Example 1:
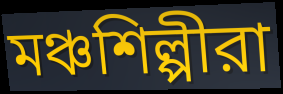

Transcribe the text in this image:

মঞ্চশিল্পীরা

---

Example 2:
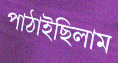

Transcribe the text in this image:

পাঠাইছিলাম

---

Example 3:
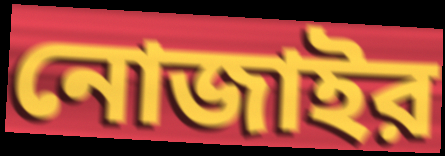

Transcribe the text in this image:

নোজাইর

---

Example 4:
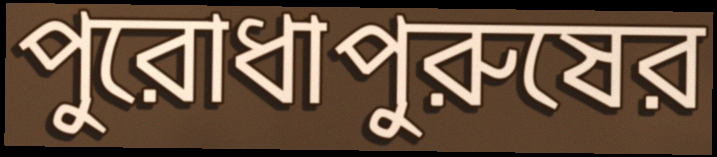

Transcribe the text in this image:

পুরোধাপুরুষের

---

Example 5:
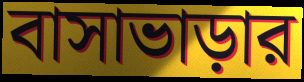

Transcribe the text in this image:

বাসাভাড়ার